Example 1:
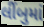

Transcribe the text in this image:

લીંબુમાં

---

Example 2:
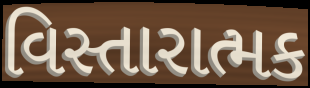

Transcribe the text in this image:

વિસ્તારાત્મક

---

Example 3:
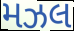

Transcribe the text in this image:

મઝલ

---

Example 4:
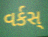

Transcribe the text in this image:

વર્કસ્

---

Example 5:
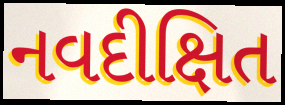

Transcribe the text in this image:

નવદીક્ષિત